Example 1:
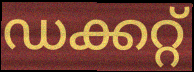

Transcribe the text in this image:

ഡക്കറ്റ്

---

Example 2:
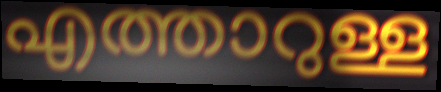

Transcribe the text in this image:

എത്താറുള്ള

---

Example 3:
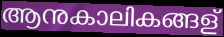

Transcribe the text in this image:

ആനുകാലികങ്ങള്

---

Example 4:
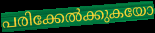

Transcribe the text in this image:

പരിക്കേൽക്കുകയോ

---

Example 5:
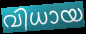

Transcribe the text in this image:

വിധായ